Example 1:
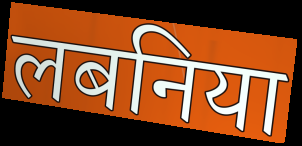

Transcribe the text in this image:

लबनिया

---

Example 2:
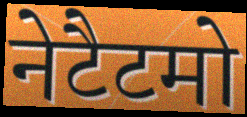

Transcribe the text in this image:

नेटैटमो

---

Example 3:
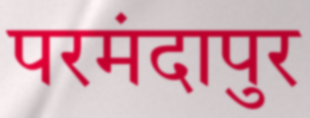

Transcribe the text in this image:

परमंदापुर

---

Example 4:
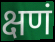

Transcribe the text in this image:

क्षणं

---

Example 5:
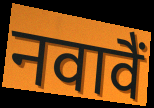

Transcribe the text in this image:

नवावैं